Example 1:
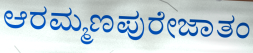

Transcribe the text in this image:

ಆರಮ್ಮಣಪುರೇಜಾತಂ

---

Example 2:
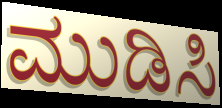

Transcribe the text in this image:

ಮುಡಿಸಿ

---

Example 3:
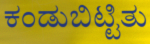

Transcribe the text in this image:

ಕಂಡುಬಿಟ್ಟಿತು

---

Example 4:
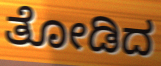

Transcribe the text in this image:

ತೋಡಿದ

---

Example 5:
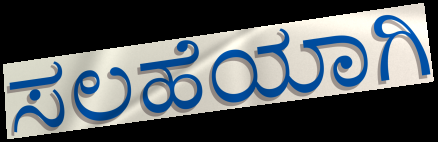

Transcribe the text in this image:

ಸಲಹೆಯಾಗಿ